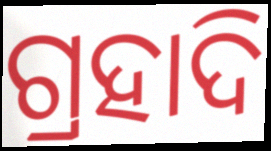
ଗ୍ରହାଦି